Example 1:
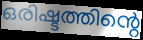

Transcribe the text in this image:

ഒരിഷ്ടത്തിന്റെ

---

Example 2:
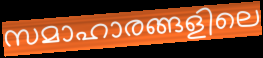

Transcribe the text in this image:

സമാഹാരങ്ങളിലെ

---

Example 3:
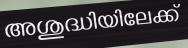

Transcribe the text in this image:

അശുദ്ധിയിലേക്ക്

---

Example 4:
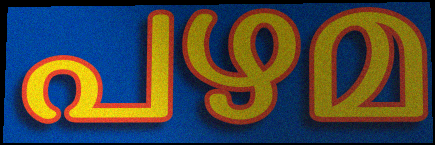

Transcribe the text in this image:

പഴമ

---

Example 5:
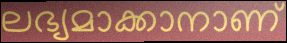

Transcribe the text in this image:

ലഭ്യമാക്കാനാണ്